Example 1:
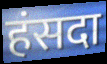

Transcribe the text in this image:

हंसदा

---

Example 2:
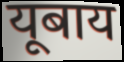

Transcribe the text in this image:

यूबाय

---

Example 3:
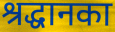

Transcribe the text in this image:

श्रद्धानका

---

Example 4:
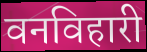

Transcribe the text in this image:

वनविहारी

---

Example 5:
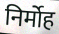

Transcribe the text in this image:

निर्मोह